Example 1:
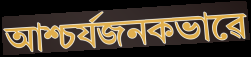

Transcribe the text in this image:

আশ্চৰ্যজনকভাৱে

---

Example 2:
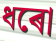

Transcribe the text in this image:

ধৰো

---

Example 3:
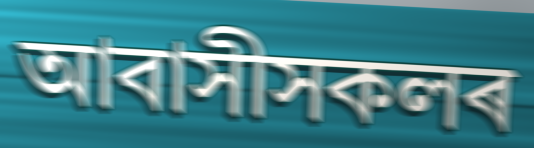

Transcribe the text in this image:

আবাসীসকলৰ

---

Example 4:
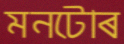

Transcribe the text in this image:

মনটোৰ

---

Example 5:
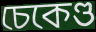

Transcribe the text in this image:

চেকেণ্ড